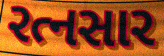
રત્નસાર